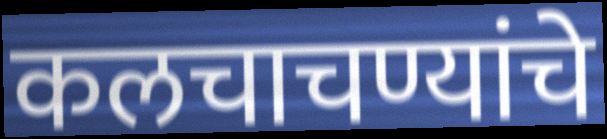
कलचाचण्यांचे